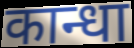
कान्धा